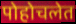
पोहोचलेत